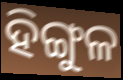
ହିଙ୍ଗୁଳ